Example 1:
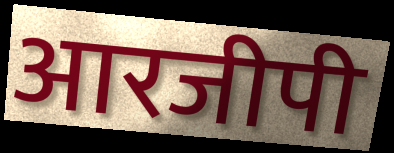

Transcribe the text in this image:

आरजीपी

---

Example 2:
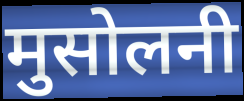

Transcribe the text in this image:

मुसोलनी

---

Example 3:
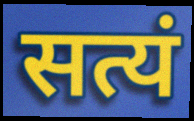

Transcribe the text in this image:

सत्यं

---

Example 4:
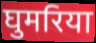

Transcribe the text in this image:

घुमरिया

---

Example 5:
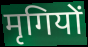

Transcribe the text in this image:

मृगियों